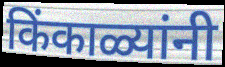
किंकाळ्यांनी